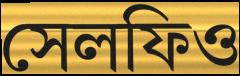
সেলফিও